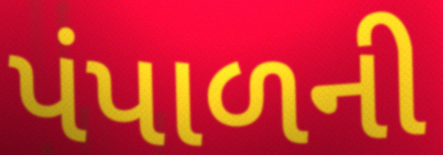
પંપાળની